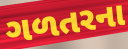
ગળતરના